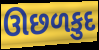
ઊછળકુદ